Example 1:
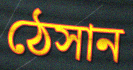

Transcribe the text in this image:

ঠেসান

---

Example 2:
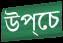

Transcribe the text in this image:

উপ্চে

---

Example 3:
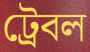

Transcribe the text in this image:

ট্রেবল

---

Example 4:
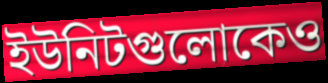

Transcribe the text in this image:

ইউনিটগুলোকেও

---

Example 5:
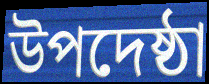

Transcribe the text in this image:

উপদেষ্ঠা